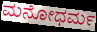
ಮನೋಧರ್ಮ